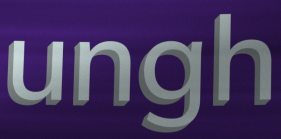
ungh